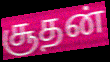
சூதன்